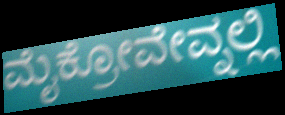
ಮೈಕ್ರೋವೇವ್ನಲ್ಲಿ